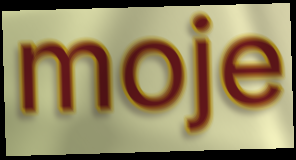
moje